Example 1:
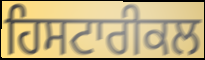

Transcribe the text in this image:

ਹਿਸਟਾਰੀਕਲ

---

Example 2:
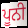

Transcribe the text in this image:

ਪੂਨੀ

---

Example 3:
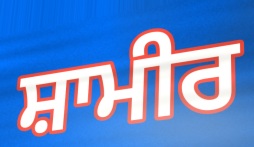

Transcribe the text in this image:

ਸ਼ਾਮੀਰ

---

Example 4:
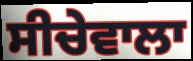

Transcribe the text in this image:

ਸੀਚੇਵਾਲਾ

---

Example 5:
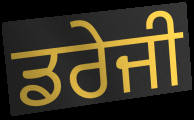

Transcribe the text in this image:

ਡਰੇਜੀ